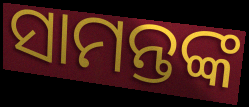
ସାମନ୍ତଙ୍କ